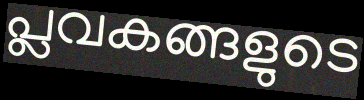
പ്ലവകങ്ങളുടെ